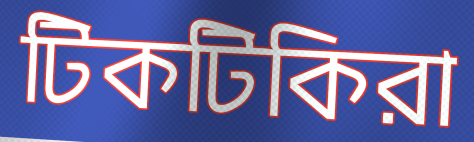
টিকটিকিরা